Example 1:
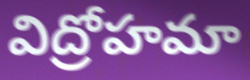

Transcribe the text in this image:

విద్రోహమా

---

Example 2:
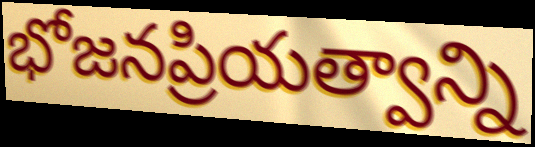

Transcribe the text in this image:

భోజనప్రియత్వాన్ని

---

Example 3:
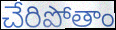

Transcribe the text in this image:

చేరిపోతాం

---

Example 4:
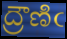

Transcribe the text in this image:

ద్రౌణిఁ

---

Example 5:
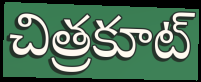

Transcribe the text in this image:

చిత్రకూట్